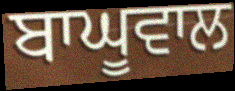
ਬਾਘੂਵਾਲ